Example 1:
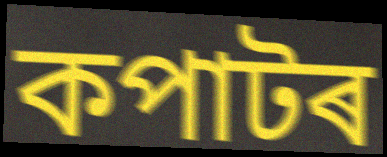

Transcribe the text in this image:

কপাটৰ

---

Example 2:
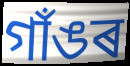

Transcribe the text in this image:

গাঁঙৰ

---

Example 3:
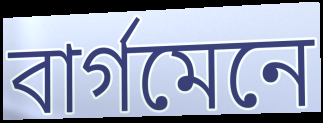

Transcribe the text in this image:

বাৰ্গমেনে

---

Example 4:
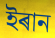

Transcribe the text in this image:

ইৰান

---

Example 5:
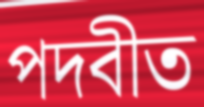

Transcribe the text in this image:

পদবীত